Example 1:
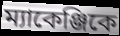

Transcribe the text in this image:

ম্যাকেঞ্জিকে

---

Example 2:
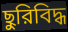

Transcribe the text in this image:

ছুরিবিদ্ধ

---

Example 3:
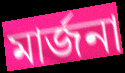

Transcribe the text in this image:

মার্জনা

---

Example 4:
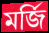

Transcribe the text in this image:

মর্জি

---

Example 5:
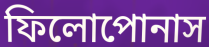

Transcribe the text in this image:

ফিলোপোনাস